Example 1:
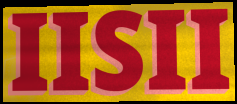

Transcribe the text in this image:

IISII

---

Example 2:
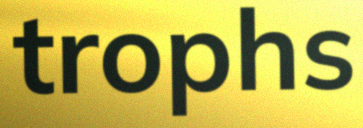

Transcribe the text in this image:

trophs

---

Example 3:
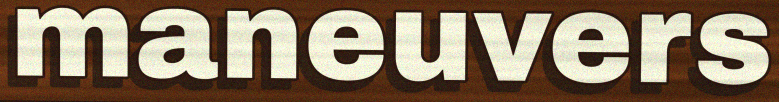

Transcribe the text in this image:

maneuvers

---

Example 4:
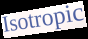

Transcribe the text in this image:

Isotropic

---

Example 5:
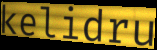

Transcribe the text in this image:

kelidru